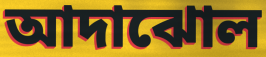
আদাঝোল